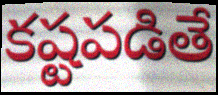
కష్టపడితే